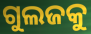
ଗୁଲଜକୁ